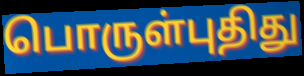
பொருள்புதிது